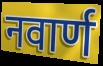
नवार्ण